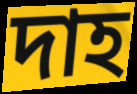
দাহ